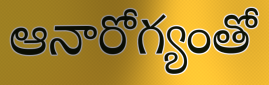
ఆనారోగ్యంతో